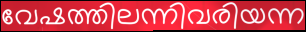
വേഷത്തിലന്നിവരിയന്ന